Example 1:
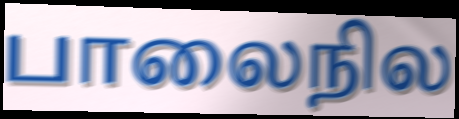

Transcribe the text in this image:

பாலைநில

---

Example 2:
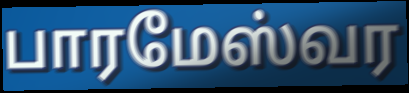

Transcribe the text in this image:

பாரமேஸ்வர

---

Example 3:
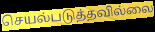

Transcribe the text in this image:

செயல்படுத்தவில்லை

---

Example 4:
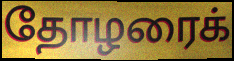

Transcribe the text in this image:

தோழரைக்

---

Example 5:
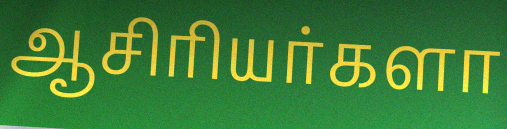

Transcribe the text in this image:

ஆசிரியர்களா